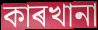
কাৰখানা